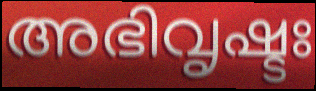
അഭിവൃഷ്ടഃ